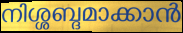
നിശ്ശബ്ദമാക്കാൻ